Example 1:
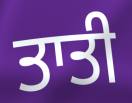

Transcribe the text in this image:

ਤਾਤੀ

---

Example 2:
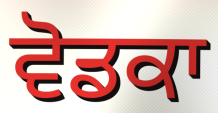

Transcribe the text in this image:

ਵੋਡਕਾ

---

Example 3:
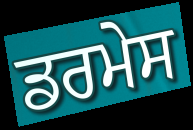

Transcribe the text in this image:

ਡਰਮੇਸ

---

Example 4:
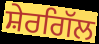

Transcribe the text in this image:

ਸ਼ੇਰਗਿੱਲ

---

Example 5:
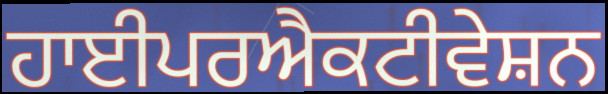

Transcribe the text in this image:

ਹਾਈਪਰਐਕਟੀਵੇਸ਼ਨ